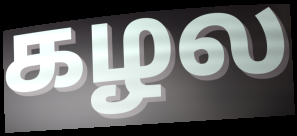
கழல